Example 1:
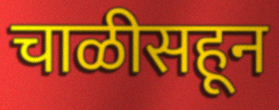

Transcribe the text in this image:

चाळीसहून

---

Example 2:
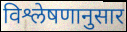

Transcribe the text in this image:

विश्लेषणानुसार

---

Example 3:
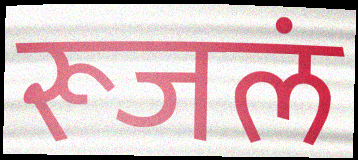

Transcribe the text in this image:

रूजलं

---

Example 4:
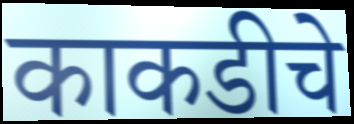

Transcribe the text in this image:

काकडीचे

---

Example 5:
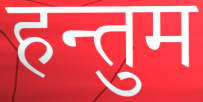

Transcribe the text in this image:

हन्तुम